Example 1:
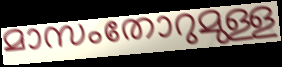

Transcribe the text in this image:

മാസംതോറുമുള്ള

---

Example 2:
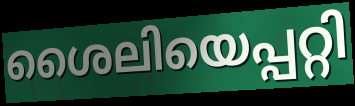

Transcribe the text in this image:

ശൈലിയെപ്പറ്റി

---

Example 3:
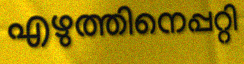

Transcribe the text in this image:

എഴുത്തിനെപ്പറ്റി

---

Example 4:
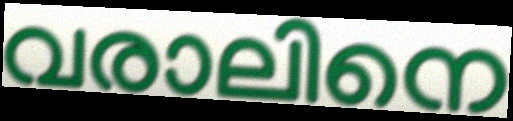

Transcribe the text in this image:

വരാലിനെ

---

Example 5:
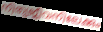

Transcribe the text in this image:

നിത്യജീവനിലേക്കും